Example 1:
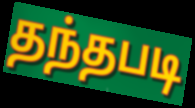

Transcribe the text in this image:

தந்தபடி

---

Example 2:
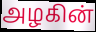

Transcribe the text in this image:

அழகின்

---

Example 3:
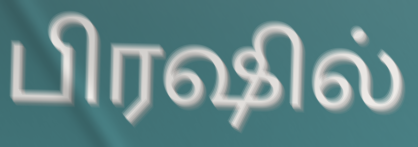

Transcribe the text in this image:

பிரஷில்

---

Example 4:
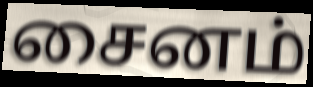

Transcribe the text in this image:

சைனம்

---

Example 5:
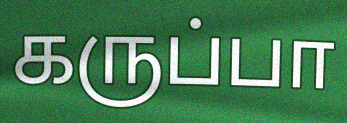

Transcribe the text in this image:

கருப்பா